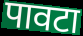
पावटा